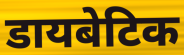
डायबेटिक